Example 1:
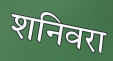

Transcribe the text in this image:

शनिवरा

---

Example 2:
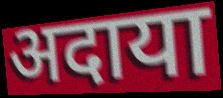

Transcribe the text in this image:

अदाया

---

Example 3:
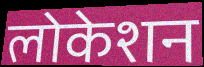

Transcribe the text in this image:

लोकेशन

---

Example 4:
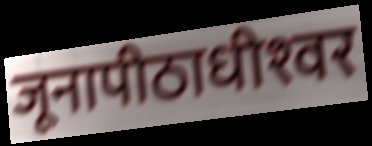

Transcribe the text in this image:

जूनापीठाधीश्वर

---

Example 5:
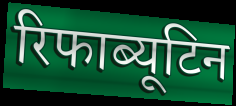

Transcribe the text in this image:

रिफाब्यूटिन